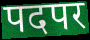
पदपर